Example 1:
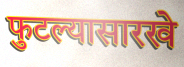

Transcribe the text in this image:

फुटल्यासारखे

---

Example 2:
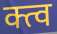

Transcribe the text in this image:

क्त्व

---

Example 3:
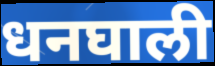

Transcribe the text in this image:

धनघाली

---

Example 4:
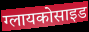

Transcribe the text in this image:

ग्लायकोसाइड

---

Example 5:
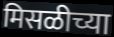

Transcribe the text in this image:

मिसळीच्या